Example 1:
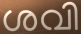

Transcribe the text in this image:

ശവി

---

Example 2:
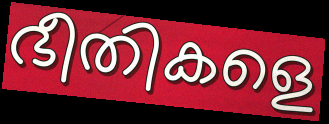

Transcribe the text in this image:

ഭീതികളെ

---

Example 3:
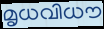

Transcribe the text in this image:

മൃധവിധൗ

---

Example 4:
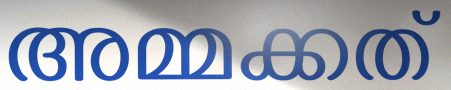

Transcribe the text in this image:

അമ്മക്കത്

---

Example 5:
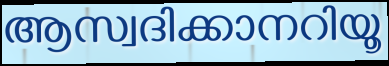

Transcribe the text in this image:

ആസ്വദിക്കാനറിയൂ